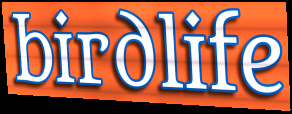
birdlife